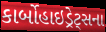
કાર્બોહાઇડ્રેટ્સના